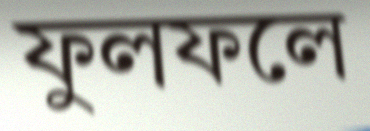
ফুলফলে